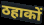
ठहाकों